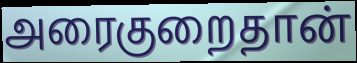
அரைகுறைதான்